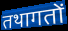
तथागतों